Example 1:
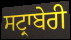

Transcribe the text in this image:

ਸਟ੍ਰਾਬੇਰੀ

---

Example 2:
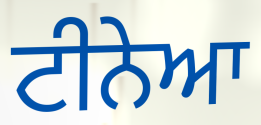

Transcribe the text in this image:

ਟੀਨੇਆ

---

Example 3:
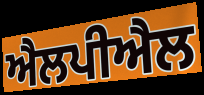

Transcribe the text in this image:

ਐਲਪੀਐਲ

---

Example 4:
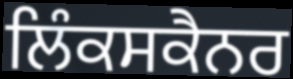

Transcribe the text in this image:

ਲਿੰਕਸਕੈਨਰ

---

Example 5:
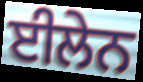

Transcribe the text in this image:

ਈਲੇਨ